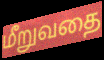
மீறுவதை